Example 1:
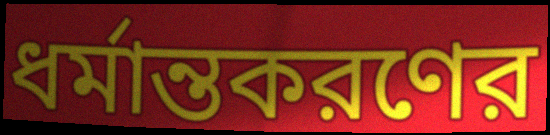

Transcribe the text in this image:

ধর্মান্তকরণের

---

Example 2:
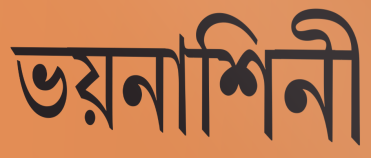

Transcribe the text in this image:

ভয়নাশিনী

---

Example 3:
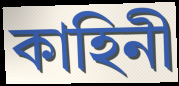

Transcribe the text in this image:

কাহিনী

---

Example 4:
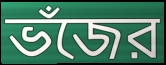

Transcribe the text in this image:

ভঁজের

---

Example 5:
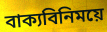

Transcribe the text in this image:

বাক্যবিনিময়ে